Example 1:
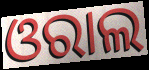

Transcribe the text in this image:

ଓରାଲ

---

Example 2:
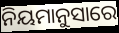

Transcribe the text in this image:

ନିୟମାନୁସାରେ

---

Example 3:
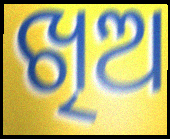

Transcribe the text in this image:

ଖିଅ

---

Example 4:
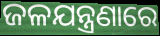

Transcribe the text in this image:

ଜଳଯନ୍ତ୍ରଣାରେ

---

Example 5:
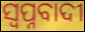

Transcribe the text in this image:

ସ୍ୱପ୍ନବାଦୀ